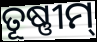
ତୂଷ୍ଣୀମ୍